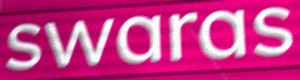
swaras